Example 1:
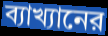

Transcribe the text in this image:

ব্যাখ্যানের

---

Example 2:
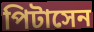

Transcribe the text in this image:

পিটাসেন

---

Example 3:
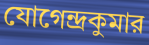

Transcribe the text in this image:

যোগেন্দ্রকুমার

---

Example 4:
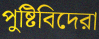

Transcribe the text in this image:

পুষ্টিবিদেরা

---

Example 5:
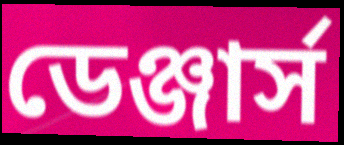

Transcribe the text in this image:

ডেঞ্জার্স